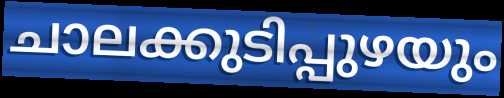
ചാലക്കുടിപ്പുഴയും